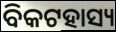
ବିକଟହାସ୍ୟ